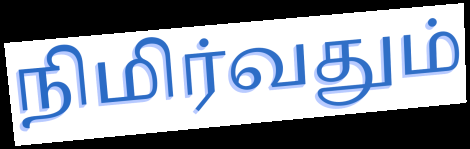
நிமிர்வதும்